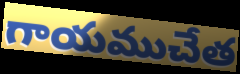
గాయముచేత